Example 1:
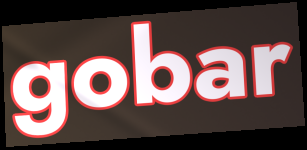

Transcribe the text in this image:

gobar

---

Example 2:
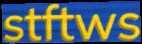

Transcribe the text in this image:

stftws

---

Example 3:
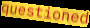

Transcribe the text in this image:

questioned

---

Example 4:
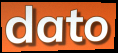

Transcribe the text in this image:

dato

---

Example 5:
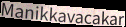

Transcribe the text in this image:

Manikkavacakar